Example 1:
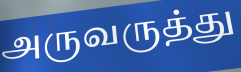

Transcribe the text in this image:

அருவருத்து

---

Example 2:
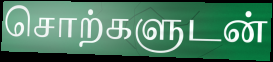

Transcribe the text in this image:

சொற்களுடன்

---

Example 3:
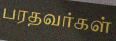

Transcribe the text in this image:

பரதவர்கள்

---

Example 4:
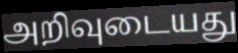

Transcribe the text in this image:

அறிவுடையது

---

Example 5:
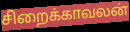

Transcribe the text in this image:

சிறைக்காவலன்